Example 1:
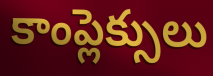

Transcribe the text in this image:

కాంప్లెక్సులు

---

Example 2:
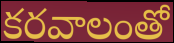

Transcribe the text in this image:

కరవాలంతో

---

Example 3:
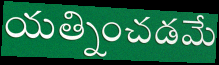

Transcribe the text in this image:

యత్నించడమే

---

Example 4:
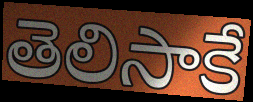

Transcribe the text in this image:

తెలిసాకే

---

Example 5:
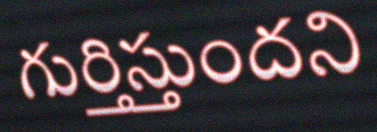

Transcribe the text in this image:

గుర్తిస్తుందని